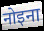
नोइना